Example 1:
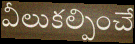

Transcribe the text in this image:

వీలుకల్పించే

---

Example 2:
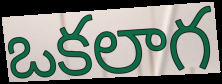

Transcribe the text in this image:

ఒకలాగ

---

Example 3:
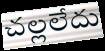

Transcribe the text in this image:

చల్లలేదు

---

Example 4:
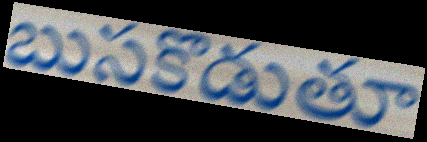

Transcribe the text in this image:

బుసకొడుతూ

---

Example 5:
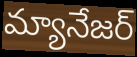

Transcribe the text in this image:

మ్యానేజర్